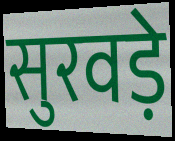
सुरवड़े